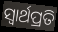
ସ୍ୱାର୍ଥପ୍ରତି